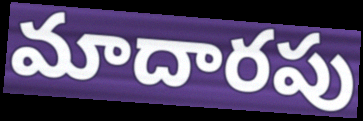
మాదారపు